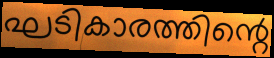
ഘടികാരത്തിന്റെ